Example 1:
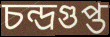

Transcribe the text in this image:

চন্দ্ৰগুপ্ত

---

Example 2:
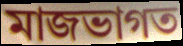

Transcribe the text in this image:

মাজভাগত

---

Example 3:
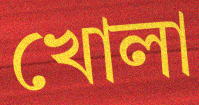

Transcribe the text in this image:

খোলা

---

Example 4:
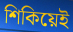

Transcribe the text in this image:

শিকিয়েই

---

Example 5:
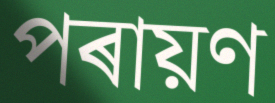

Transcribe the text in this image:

পৰায়ণ